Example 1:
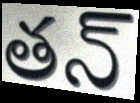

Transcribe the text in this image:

తన్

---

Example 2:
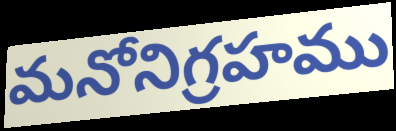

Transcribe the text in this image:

మనోనిగ్రహము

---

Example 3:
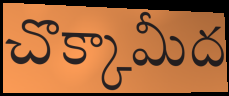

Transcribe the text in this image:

చొక్కామీద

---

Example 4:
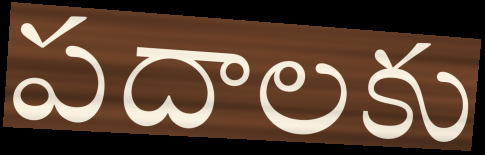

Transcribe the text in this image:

పదాలకు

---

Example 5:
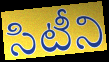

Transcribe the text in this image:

సిటీని